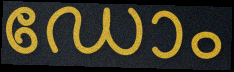
ഡോം